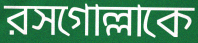
রসগোল্লাকে